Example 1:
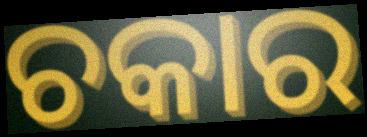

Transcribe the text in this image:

ଚକାର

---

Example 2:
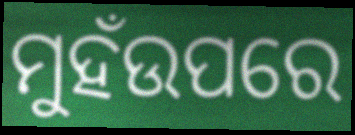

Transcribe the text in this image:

ମୁହଁଉପରେ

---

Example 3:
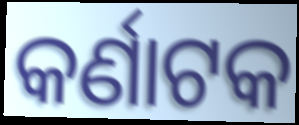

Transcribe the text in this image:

କର୍ଣାଟକ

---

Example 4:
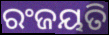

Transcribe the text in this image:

ରଂଜୟତି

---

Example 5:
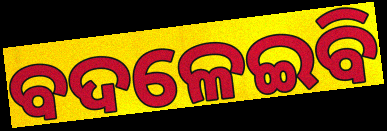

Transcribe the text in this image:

ବଦଳେଇବି